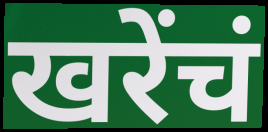
खरेंचं